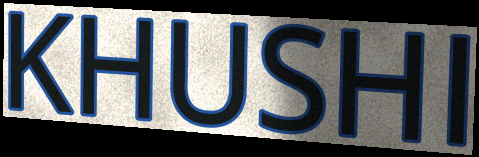
KHUSHI